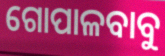
ଗୋପାଳବାବୁ